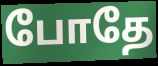
போதே